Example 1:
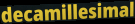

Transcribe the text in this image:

decamillesimal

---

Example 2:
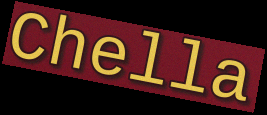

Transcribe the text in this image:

Chella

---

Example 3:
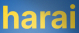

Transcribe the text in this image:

harai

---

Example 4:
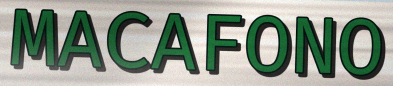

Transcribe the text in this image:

MACAFONO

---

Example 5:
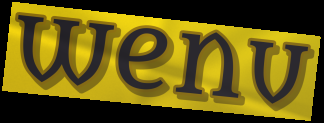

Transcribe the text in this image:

wenu